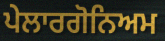
ਪੇਲਾਰਗੋਨਿਅਮ